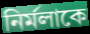
নির্মলাকে